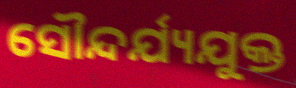
ସୌନ୍ଦର୍ଯ୍ୟଯୁକ୍ତ